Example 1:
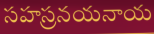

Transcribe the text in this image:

సహస్రనయనాయ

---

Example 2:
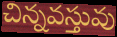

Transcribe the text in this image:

చిన్నవస్తువు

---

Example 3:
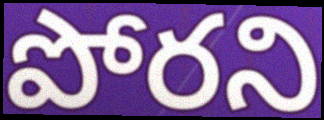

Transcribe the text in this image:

పోరని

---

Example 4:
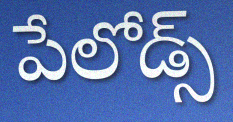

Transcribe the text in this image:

పేలోడ్స్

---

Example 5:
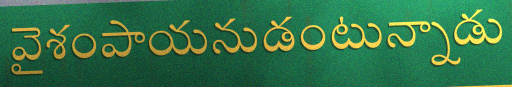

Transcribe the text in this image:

వైశంపాయనుడంటున్నాడు